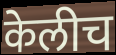
केलीच